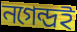
নগেন্দ্রই